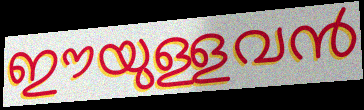
ഈയുള്ളവൻ